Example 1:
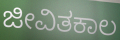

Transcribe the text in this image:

ಜೀವಿತಕಾಲ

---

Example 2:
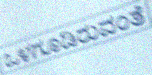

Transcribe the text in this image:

ಒಳಗೂಡಿರುವಂತೆ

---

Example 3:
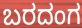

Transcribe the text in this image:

ಬರದಂಗ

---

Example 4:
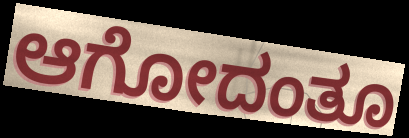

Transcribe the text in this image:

ಆಗೋದಂತೂ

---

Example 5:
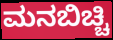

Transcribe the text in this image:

ಮನಬಿಚ್ಚಿ